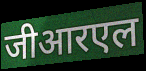
जीआरएल